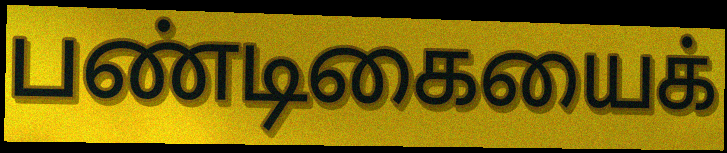
பண்டிகையைக்